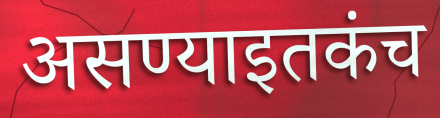
असण्याइतकंच